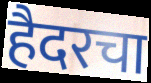
हैदरचा